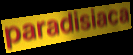
paradisiaca